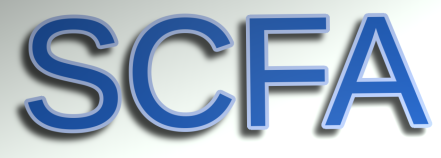
SCFA